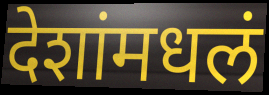
देशांमधलं